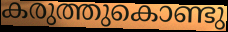
കരുത്തുകൊണ്ടു